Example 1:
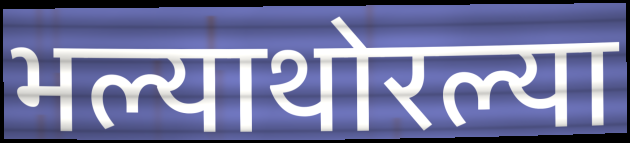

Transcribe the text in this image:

भल्याथोरल्या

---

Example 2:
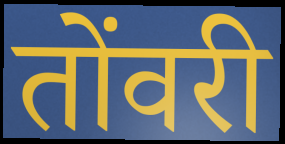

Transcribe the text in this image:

तोंवरी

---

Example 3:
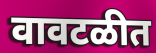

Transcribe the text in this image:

वावटळीत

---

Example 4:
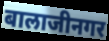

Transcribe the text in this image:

बालाजीनगर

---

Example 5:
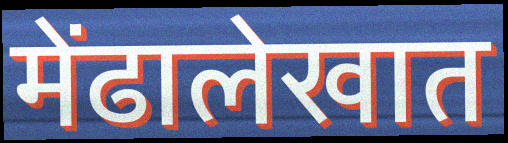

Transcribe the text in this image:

मेंढालेखात